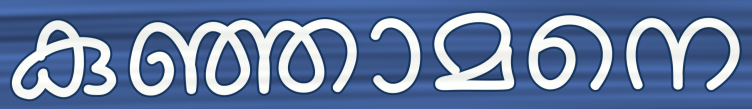
കുഞ്ഞാമനെ